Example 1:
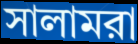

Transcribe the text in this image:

সালামরা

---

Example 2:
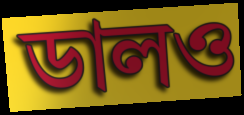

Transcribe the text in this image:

ডালও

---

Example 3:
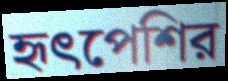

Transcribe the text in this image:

হৃৎপেশির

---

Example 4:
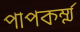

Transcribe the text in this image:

পাপকর্ম্ম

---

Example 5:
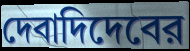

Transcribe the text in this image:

দেবাদিদেবের